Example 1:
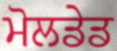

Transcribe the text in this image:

ਮੋਲਡੇਡ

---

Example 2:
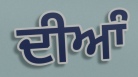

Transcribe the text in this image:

ਦੀਆੰ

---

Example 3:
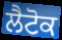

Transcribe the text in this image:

ਲੈਟੋਕ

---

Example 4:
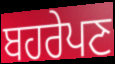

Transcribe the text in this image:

ਬਹਰੇਪਣ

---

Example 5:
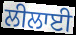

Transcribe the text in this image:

ਲੀਲਾਈ